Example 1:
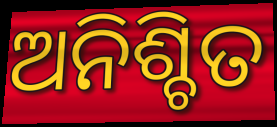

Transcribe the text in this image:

ଅନିଶ୍ଚିତ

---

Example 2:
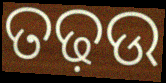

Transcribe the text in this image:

ତଢ଼ଉ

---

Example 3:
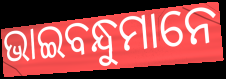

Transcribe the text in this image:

ଭାଇବନ୍ଧୁମାନେ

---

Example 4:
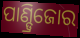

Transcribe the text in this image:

ପାଣ୍ଡ୍ରିଜୋର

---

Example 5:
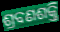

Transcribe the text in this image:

ଶ୍ରବଣଶକ୍ତି